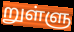
றுள்ளு